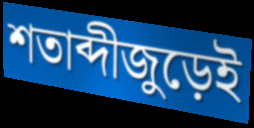
শতাব্দীজুড়েই